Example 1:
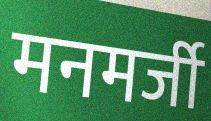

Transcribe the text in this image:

मनमर्जी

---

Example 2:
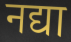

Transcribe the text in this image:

नद्या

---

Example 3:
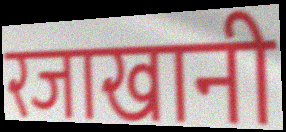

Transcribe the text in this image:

रजाखानी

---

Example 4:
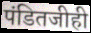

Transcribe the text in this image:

पंडितजीही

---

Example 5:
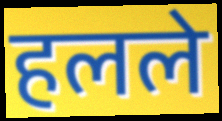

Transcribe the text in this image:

हलले